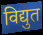
विद्युत